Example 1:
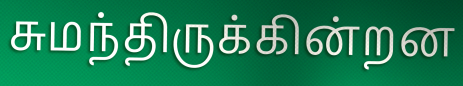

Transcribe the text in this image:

சுமந்திருக்கின்றன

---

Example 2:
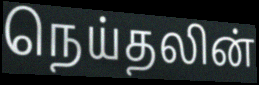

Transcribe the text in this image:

நெய்தலின்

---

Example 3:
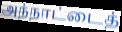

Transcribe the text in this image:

அந்நாட்டைத்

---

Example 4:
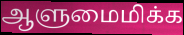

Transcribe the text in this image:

ஆளுமைமிக்க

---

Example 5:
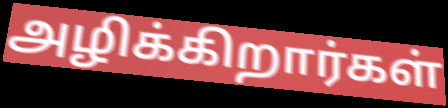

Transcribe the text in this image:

அழிக்கிறார்கள்